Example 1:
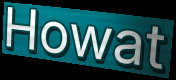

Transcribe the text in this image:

Howat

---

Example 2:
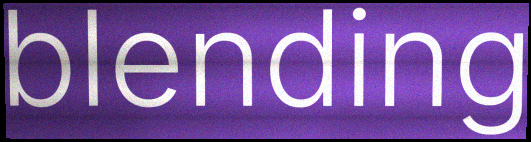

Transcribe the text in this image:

blending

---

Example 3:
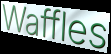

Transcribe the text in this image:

Waffles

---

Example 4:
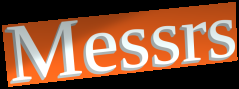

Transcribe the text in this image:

Messrs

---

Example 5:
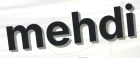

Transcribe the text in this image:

mehdi